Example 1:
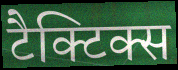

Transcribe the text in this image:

टैक्टिक्स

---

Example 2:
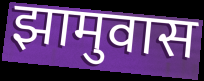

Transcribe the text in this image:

झामुवास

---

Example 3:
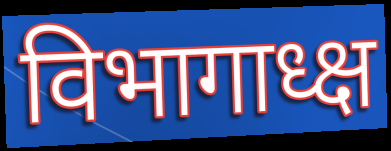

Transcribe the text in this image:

विभागाध्क्ष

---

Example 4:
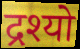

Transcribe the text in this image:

द्रश्यो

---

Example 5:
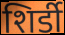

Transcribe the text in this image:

शिर्डी